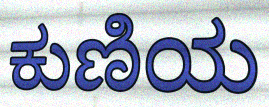
ಕುಣಿಯ